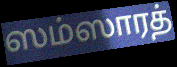
ஸம்ஸாரத்